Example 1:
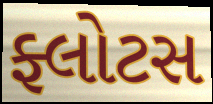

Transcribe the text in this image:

ફ્લોટસ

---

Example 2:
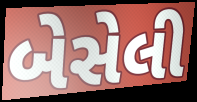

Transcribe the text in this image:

બેસેલી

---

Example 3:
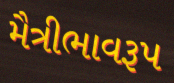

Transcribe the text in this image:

મૈત્રીભાવરૂપ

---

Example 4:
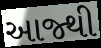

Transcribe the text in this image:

આજ્થી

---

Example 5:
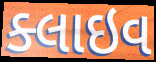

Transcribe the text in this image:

ક્લાઇવ